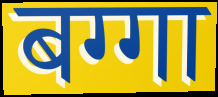
बग्गा